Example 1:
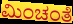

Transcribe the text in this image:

ಮಿಂಚಂತೆ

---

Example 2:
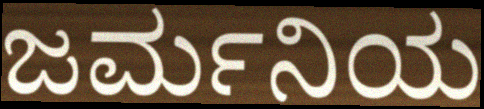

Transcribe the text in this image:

ಜರ್ಮನಿಯ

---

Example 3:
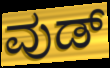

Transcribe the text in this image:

ವುಡ್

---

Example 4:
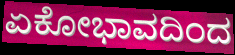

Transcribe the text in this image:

ಏಕೋಭಾವದಿಂದ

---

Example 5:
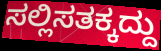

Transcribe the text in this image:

ಸಲ್ಲಿಸತಕ್ಕದ್ದು